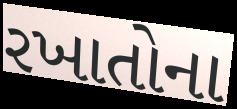
રખાતોના